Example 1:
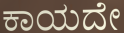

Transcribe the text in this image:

ಕಾಯದೇ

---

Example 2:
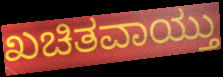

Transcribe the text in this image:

ಖಚಿತವಾಯ್ತು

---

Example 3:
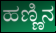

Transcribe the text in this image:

ಹಣ್ಣಿನ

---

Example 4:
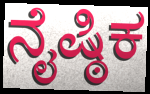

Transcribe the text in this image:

ನೈಷ್ಠಿಕ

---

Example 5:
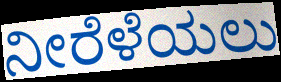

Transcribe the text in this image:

ನೀರೆಳೆಯಲು